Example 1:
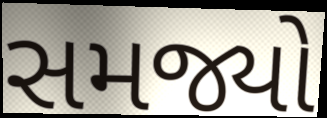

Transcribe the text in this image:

સમજ્યો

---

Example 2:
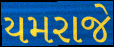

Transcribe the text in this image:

યમરાજે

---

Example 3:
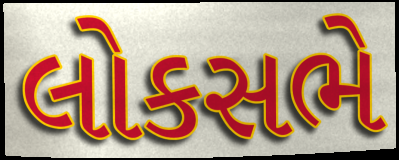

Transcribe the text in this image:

લોકસભે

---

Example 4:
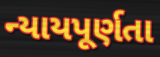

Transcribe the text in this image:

ન્યાયપૂર્ણતા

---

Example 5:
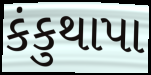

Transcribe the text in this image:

કંકુથાપા